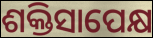
ଶକ୍ତିସାପେକ୍ଷ